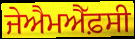
ਜੇਐਮਐੱਫ਼ਸੀ